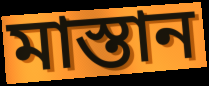
মাস্তান